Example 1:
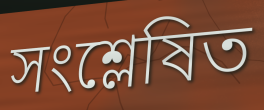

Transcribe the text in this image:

সংশ্লেষিত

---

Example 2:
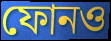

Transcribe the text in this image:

ফোনও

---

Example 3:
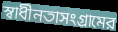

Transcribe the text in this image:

স্বাধীনতাসংগ্রামের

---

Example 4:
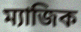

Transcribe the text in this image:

ম্যাজিক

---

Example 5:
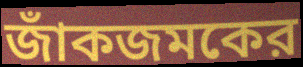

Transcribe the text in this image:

জাঁকজমকের